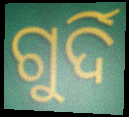
ଗୁର୍ଦି